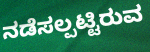
ನಡೆಸಲ್ಪಟ್ಟಿರುವ